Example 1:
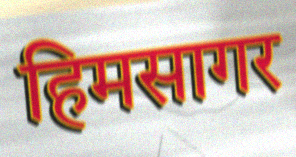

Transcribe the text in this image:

हिमसागर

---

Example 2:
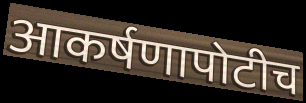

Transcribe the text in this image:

आकर्षणापोटीच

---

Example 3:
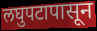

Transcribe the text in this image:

लघुपटापासून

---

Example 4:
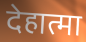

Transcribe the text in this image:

देहात्मा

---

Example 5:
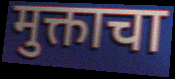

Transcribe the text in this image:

मुक्ताचा